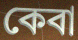
কেবা